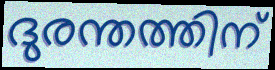
ദുരന്തത്തിന്